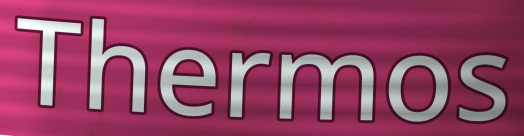
Thermos